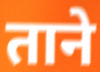
ताने